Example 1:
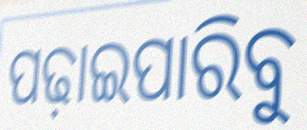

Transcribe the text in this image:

ପଢ଼ାଇପାରିବୁ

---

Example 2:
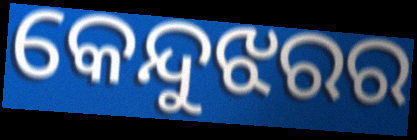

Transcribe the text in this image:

କେନ୍ଦୁଝରର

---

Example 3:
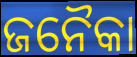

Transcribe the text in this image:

ଜନୈକା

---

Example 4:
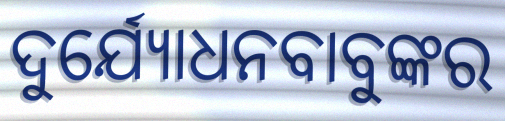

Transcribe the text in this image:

ଦୁର୍ଯ୍ୟୋଧନବାବୁଙ୍କର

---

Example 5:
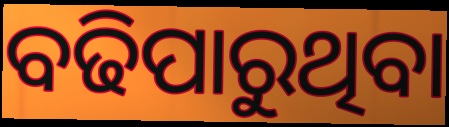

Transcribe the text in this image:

ବଢିପାରୁଥିବା